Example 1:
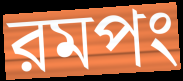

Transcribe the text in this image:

রমপং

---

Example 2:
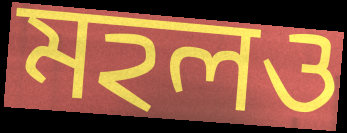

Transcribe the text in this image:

মহলও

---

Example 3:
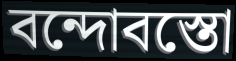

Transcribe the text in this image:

বন্দোবস্তো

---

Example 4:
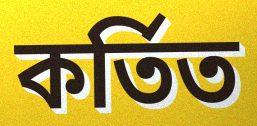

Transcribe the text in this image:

কর্তিত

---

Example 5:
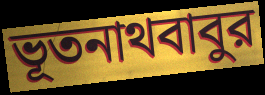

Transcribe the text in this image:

ভূতনাথবাবুর